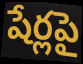
షేర్లపై